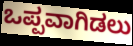
ಒಪ್ಪವಾಗಿಡಲು